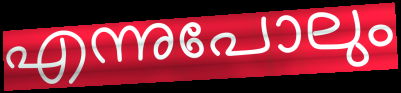
എന്നുപോലും